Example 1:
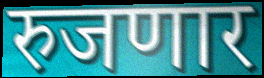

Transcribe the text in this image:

रुजणार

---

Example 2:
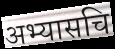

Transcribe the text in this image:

अभ्यासचि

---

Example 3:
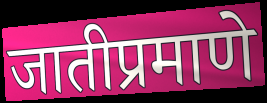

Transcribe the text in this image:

जातीप्रमाणे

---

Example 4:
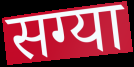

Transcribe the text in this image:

सग्या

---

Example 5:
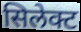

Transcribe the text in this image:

सिलेक्ट